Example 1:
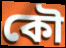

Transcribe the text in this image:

কৌ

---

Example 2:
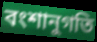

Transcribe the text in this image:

বংশানুগতি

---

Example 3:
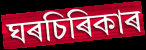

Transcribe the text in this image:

ঘৰচিৰিকাৰ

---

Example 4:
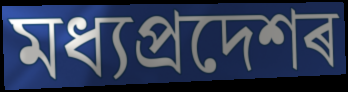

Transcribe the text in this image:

মধ্যপ্ৰদেশৰ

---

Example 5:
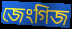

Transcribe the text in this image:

জেংগিজ